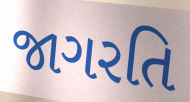
જાગરતિ